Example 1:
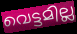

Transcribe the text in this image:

വെട്ടമില്ല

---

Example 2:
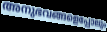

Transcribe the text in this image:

അനുഭവങ്ങളെപ്പോലും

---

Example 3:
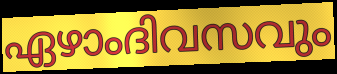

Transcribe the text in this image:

ഏഴാംദിവസവും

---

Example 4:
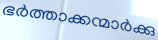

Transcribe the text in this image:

ഭർത്താക്കന്മാർക്കു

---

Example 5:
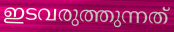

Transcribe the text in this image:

ഇടവരുത്തുന്നത്